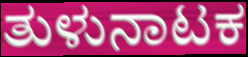
ತುಳುನಾಟಕ